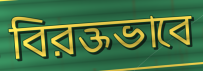
বিরক্তভাবে